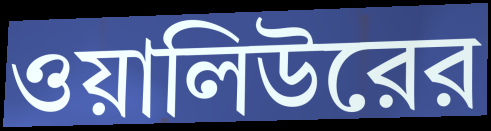
ওয়ালিউরের